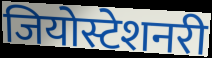
जियोस्टेशनरी